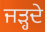
ਜੜ੍ਹਦੇ